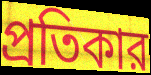
প্রতিকার